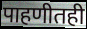
पाहणीतही